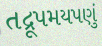
તદ્રૂપમયપણું